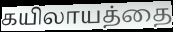
கயிலாயத்தை